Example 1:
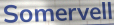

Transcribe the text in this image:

Somervell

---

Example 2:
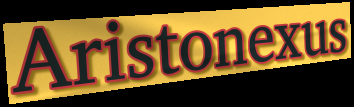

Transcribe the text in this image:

Aristonexus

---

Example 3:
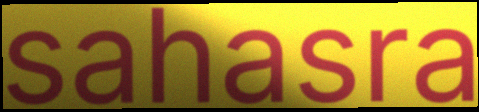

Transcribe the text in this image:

sahasra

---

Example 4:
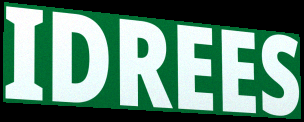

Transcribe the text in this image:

IDREES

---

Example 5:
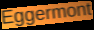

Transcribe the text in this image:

Eggermont